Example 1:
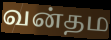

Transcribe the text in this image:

வன்தம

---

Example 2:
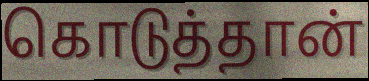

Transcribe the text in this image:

கொடுத்தான்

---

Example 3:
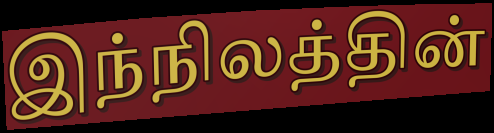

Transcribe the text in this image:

இந்நிலத்தின்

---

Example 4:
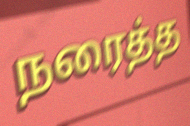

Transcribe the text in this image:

நரைத்த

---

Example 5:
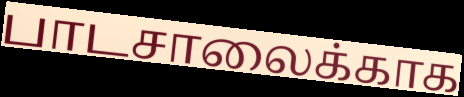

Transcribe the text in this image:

பாடசாலைக்காக